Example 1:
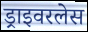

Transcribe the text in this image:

ड्राइवरलेस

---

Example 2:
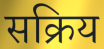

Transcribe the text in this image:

सक्रिय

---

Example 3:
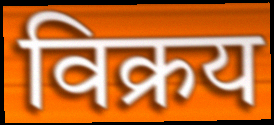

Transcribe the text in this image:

विक्रय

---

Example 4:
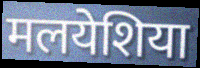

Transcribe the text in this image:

मलयेशिया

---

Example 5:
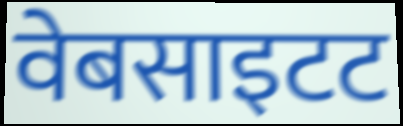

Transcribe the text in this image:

वेबसाइटट